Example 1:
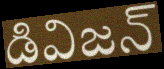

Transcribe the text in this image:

డివిజన్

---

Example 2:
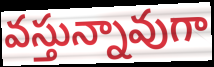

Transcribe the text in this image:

వస్తున్నావుగా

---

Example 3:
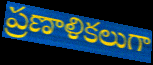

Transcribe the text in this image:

ప్రణాళికలుగా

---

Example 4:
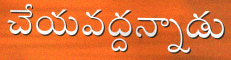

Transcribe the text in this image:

చేయవద్దన్నాడు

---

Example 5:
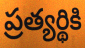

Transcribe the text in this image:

ప్రత్యర్థికి